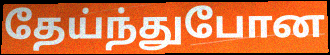
தேய்ந்துபோன